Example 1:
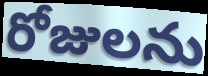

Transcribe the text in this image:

రోజులను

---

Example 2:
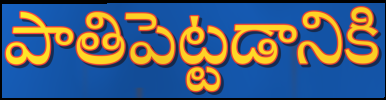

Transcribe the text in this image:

పాతిపెట్టడానికి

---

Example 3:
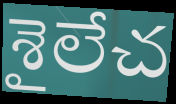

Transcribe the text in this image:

శైలేచ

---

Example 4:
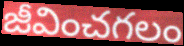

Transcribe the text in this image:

జీవించగలం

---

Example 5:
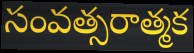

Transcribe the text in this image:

సంవత్సరాత్మక